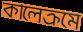
কালেক্রমে